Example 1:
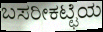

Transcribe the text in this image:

ಬಸರೀಕಟ್ಟೆಯ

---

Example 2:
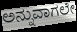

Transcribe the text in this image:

ಅನ್ನುವಾಗಲೇ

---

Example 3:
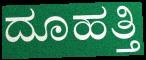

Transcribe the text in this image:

ದೂಹತ್ತಿ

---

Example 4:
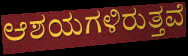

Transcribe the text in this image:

ಆಶಯಗಳಿರುತ್ತವೆ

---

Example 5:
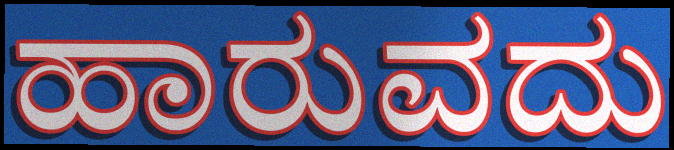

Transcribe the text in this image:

ಹಾರುವದು